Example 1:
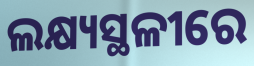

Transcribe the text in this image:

ଲକ୍ଷ୍ୟସ୍ଥଳୀରେ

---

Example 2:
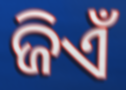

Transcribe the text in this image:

ଜିଏଁ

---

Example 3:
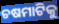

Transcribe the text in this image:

ଚଷମାଟିକୁ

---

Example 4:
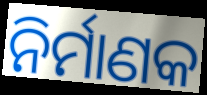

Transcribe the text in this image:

ନିର୍ମାଣକ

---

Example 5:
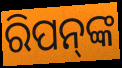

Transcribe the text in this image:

ରିପନ୍‍ଙ୍କ